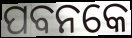
ପବନକେ